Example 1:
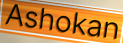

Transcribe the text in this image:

Ashokan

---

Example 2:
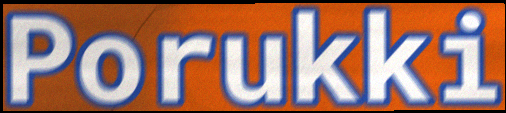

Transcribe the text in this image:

Porukki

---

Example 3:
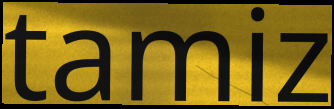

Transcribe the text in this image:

tamiz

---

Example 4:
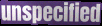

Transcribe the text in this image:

unspecified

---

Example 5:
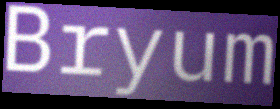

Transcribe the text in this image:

Bryum